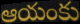
ఆయంకు